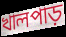
খালপাড়